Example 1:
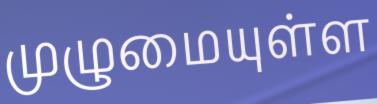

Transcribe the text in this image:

முழுமையுள்ள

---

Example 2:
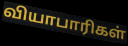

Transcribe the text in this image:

வியாபாரிகள்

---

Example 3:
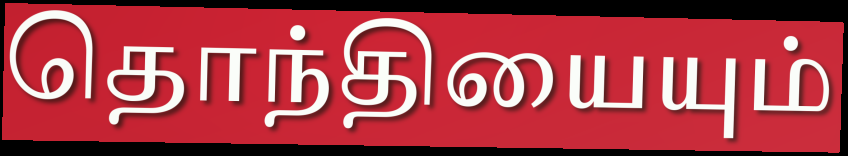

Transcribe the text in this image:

தொந்தியையும்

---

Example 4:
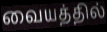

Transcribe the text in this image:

வையத்தில்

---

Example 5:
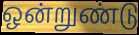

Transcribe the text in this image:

ஒன்றுண்டு